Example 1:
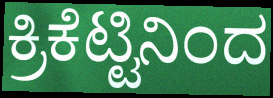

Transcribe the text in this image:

ಕ್ರಿಕೆಟ್ಟಿನಿಂದ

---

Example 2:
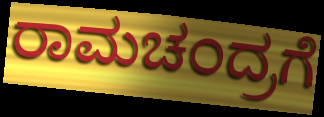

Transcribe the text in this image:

ರಾಮಚಂದ್ರಗೆ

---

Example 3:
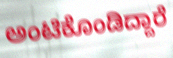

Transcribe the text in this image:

ಅಂಟಿಕೊಂಡಿದ್ದಾರೆ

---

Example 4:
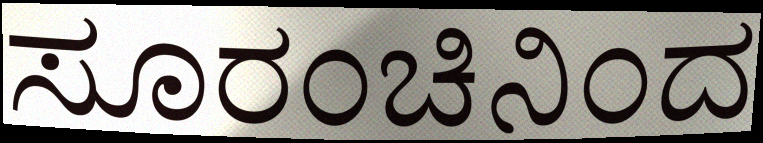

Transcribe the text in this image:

ಸೂರಂಚಿನಿಂದ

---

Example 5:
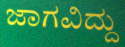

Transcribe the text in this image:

ಜಾಗವಿದ್ದು